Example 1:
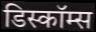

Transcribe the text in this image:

डिस्कॉम्स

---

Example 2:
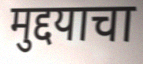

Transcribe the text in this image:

मुद्दयाचा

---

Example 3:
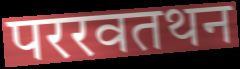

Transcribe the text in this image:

पररवतथन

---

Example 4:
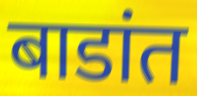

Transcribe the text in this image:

बाडांत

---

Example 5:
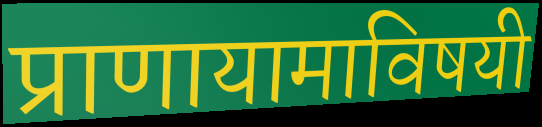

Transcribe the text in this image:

प्राणायामाविषयी